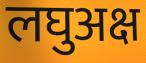
लघुअक्ष